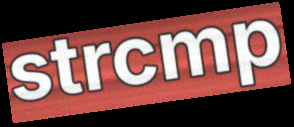
strcmp